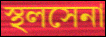
স্থলসেনা